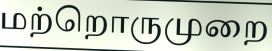
மற்றொருமுறை